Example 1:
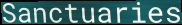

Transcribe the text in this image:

Sanctuaries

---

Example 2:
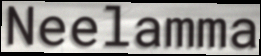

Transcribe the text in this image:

Neelamma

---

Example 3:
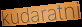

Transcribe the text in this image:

kudaratni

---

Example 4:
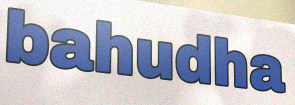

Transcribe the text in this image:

bahudha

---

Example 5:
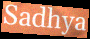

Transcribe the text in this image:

Sadhya